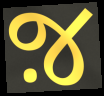
જ઼